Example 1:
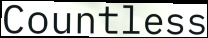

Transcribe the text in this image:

Countless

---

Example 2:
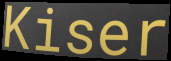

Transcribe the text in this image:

Kiser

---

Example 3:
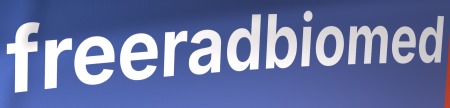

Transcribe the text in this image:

freeradbiomed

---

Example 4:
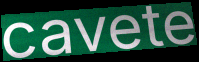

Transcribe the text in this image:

cavete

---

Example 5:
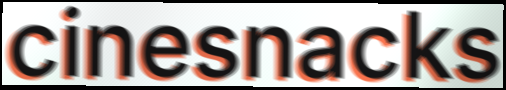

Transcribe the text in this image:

cinesnacks